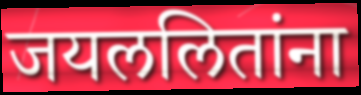
जयललितांना